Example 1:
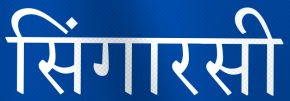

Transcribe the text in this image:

सिंगारसी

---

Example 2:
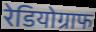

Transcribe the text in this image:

रेडियोग्राफ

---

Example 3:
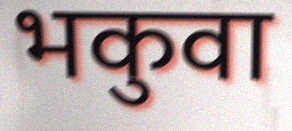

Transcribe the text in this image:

भकुवा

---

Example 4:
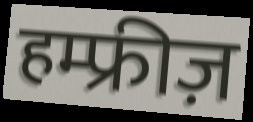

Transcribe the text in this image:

हम्फ्रीज़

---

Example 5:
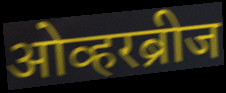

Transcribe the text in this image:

ओव्हरब्रीज